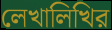
লেখালিখির